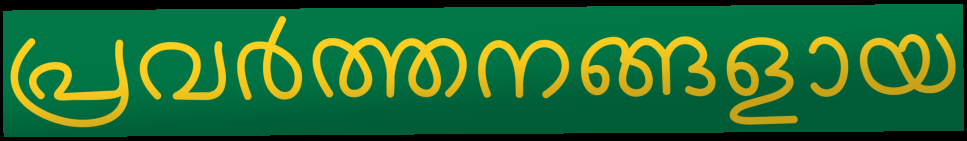
പ്രവർത്തനങ്ങളായ